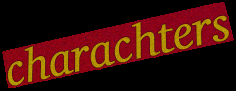
charachters